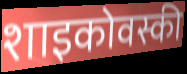
शाइकोवस्की